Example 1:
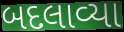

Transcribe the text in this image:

બદલાવ્યા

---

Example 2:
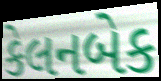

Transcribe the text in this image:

કેલનબેક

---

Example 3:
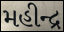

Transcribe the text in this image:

મહીન્દ્ર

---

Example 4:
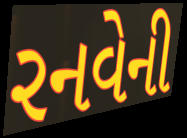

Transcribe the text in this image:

રનવેની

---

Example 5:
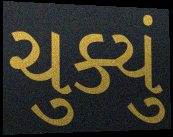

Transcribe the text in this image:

ચુક્યું